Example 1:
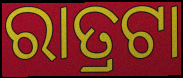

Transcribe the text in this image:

ରାତ୍ରଟା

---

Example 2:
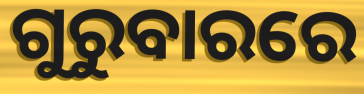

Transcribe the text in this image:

ଗୁରୁବାରରେ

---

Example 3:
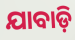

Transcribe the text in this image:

ଯାବାଡ଼ି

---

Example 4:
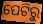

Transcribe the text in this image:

ପେଟିରୁ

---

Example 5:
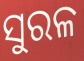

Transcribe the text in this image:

ସୁରଳ